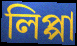
লিপ্পা